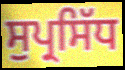
ਸੁਪ੍ਰਸਿੱਧ